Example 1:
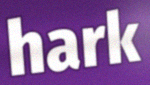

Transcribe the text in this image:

hark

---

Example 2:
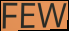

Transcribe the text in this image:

FEW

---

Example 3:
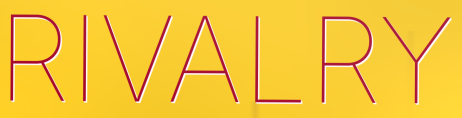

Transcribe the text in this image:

RIVALRY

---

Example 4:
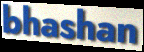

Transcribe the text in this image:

bhashan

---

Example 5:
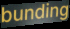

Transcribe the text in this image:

bunding